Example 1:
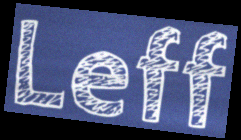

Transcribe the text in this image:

Leff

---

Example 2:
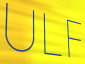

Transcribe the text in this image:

ULF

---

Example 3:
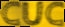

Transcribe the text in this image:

CUC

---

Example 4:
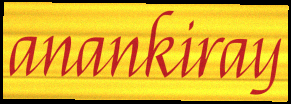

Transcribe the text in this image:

anankiray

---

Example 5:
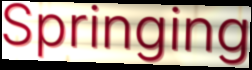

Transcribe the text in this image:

Springing